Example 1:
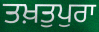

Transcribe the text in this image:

ਤਖ਼ਤੁਪੁਰਾ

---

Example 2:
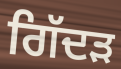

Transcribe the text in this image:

ਗਿੱਦਡ਼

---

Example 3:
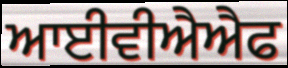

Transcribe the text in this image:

ਆਈਵੀਐਐਫ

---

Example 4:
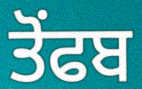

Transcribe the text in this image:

ਤੋਂਫਬ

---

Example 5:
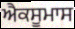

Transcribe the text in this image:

ਐਕਸੂਮਾਸ